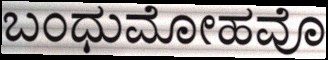
ಬಂಧುಮೋಹವೊ